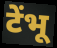
टेंभू